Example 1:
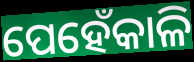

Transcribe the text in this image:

ପେହେଁକାଳି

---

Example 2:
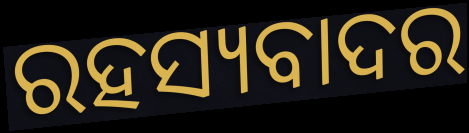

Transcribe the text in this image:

ରହସ୍ୟବାଦର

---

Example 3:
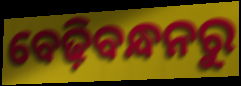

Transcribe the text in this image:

ବେଢ଼ିବନ୍ଧନରୁ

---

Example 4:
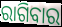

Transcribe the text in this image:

ରାଗିବାର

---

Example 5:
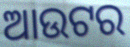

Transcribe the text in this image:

ଆଉଟର